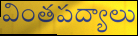
వింతపద్యాలు